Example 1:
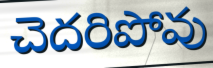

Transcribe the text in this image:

చెదరిపోవు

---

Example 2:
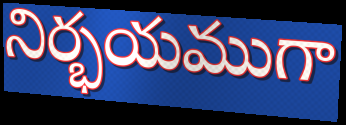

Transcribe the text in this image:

నిర్భయముగా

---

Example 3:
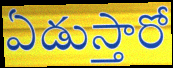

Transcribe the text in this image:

ఏడుస్తారో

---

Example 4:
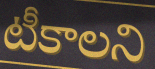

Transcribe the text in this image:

టీకాలని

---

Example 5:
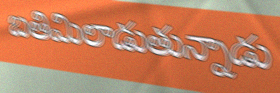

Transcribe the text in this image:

బతిమిలాడుతున్నాడు